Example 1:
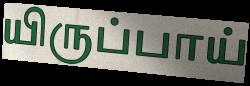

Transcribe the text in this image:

யிருப்பாய்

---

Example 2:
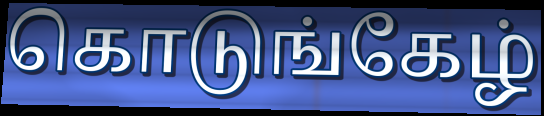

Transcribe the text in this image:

கொடுங்கேழ்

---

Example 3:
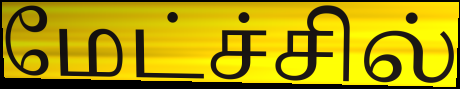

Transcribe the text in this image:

மேட்ச்சில்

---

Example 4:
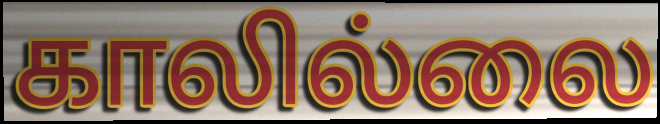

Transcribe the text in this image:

காலில்லை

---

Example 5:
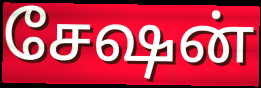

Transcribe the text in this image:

சேஷன்